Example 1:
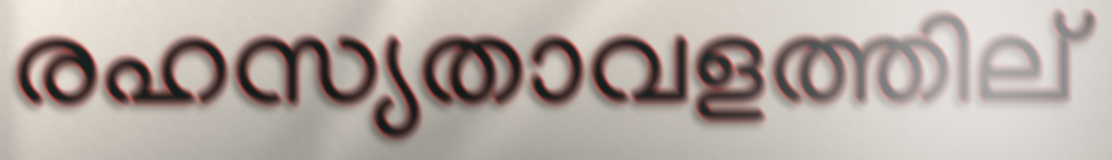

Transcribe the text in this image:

രഹസ്യതാവളത്തില്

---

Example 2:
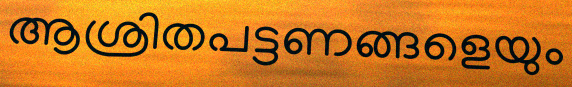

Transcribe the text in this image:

ആശ്രിതപട്ടണങ്ങളെയും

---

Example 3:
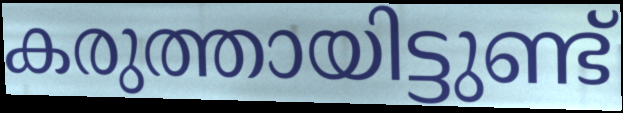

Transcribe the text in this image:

കരുത്തായിട്ടുണ്ട്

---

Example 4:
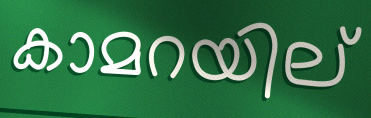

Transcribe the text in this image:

കാമറയില്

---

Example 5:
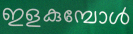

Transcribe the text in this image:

ഇളകുമ്പോൾ